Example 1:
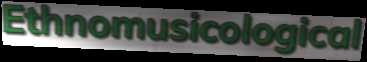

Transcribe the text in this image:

Ethnomusicological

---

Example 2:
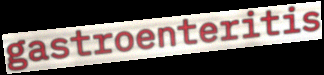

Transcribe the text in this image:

gastroenteritis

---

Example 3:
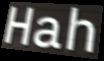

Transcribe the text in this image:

Hah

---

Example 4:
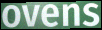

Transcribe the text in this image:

ovens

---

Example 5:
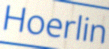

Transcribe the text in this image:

Hoerlin